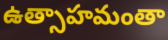
ఉత్సాహమంతా